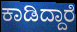
ಕಾಡಿದ್ದಾರೆ